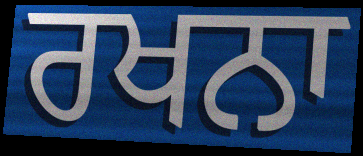
ਰਖਨਾ